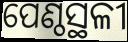
ପେଣ୍ଠସ୍ଥଳୀ